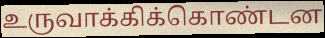
உருவாக்கிக்கொண்டன